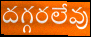
దగ్గరలేవు